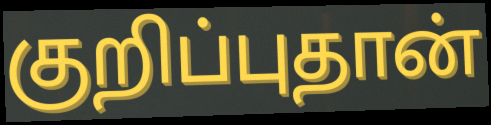
குறிப்புதான்